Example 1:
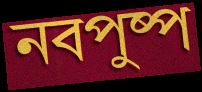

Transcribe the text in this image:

নবপুষ্প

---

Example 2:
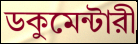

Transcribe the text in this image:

ডকুমেন্টারী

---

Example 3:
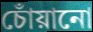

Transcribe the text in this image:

চোঁয়ানো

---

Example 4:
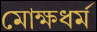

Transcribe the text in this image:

মোক্ষধর্ম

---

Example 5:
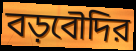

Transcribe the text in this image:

বড়বৌদির